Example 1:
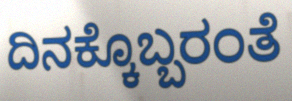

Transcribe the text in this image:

ದಿನಕ್ಕೊಬ್ಬರಂತೆ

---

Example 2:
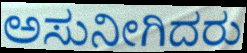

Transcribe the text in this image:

ಅಸುನೀಗಿದರು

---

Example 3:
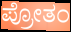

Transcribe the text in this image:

ಪ್ರೋತಂ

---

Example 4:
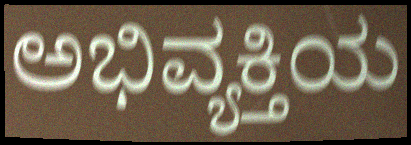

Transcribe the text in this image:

ಅಭಿವ್ಯಕ್ತಿಯ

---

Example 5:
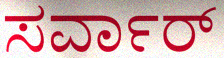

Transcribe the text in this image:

ಸರ್ವಾರ್